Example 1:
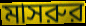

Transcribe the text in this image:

মাসরুর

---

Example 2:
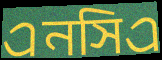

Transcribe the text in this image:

এনসিএ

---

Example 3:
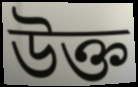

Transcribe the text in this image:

উক্ত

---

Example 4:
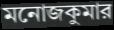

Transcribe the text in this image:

মনোজকুমার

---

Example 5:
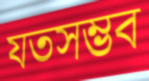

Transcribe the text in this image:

যতসম্ভব